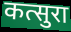
कत्सुरा